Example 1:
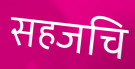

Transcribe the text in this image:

सहजचि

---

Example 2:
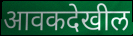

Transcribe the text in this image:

आवकदेखील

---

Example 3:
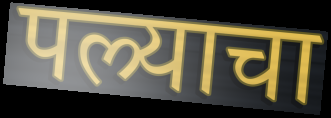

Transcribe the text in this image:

पल्याचा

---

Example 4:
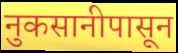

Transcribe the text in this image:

नुकसानीपासून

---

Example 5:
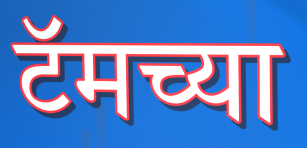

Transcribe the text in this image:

टॅमच्या